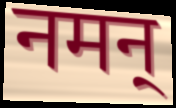
नमन्